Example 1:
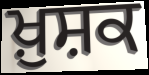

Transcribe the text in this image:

ਖ਼ੁਸ਼ਕ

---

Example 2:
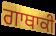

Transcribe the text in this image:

ਗਾਥਾਕੀ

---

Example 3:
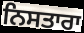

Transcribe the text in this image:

ਨਿਸਤਾਰਾ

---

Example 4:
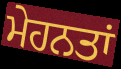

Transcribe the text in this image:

ਮੇਹਨਤਾਂ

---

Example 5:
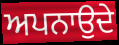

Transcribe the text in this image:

ਅਪਨਾਉਦੇ